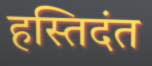
हस्तिदंत